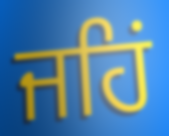
ਜਹਿਂ